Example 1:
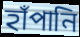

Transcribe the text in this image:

হাঁপানি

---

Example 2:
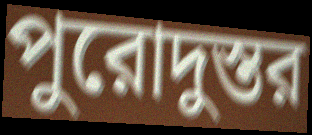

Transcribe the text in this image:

পুরোদুস্তর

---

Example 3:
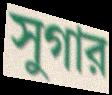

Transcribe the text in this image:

সুগার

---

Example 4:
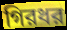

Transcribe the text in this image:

গিরধর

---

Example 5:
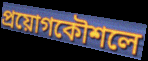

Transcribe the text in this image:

প্রয়োগকৌশলে